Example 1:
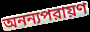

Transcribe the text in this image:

অনন্যপরায়ণ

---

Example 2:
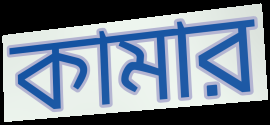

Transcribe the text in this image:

কামার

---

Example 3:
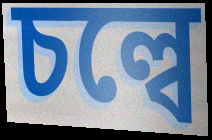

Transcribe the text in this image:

চল্বে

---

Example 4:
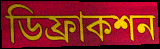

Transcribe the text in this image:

ডিফ্রাকশন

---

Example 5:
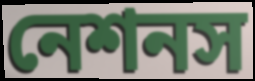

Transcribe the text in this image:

নেশনস